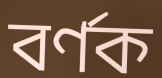
বর্ণক